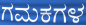
ಗಮಕಗಳ